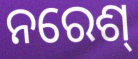
ନରେଶ୍